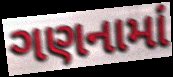
ગણનામાં